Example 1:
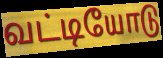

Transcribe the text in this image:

வட்டியோடு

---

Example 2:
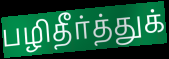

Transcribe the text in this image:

பழிதீர்த்துக்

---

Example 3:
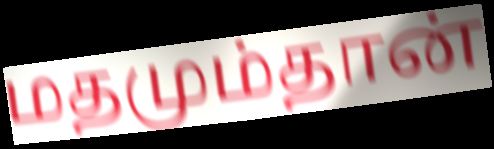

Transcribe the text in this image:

மதமும்தான்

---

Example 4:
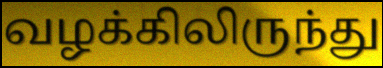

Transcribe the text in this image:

வழக்கிலிருந்து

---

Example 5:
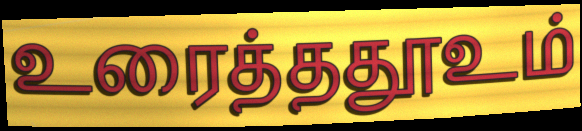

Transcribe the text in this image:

உரைத்ததூஉம்